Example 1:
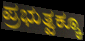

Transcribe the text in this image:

ಪ್ರಭುತ್ವಕ್ಕೂ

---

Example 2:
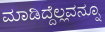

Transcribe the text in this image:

ಮಾಡಿದ್ದೆಲ್ಲವನ್ನೂ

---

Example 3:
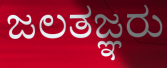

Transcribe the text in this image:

ಜಲತಜ್ಞರು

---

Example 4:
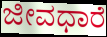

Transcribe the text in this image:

ಜೀವಧಾರೆ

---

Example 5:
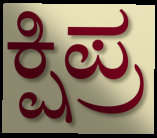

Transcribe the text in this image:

ಕ್ಷಿಪ್ರ